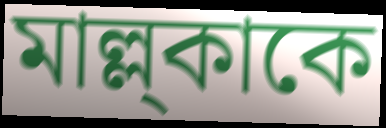
মাল্ল্কাকে